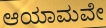
ಆಯಾಮವೇ